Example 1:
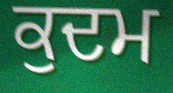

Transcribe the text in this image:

ਕੁਦਮ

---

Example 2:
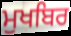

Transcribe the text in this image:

ਮੁਖਬਿਰ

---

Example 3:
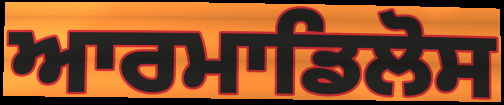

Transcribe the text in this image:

ਆਰਮਾਡਿਲੋਸ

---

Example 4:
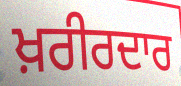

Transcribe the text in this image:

ਖ਼ਰੀਰਦਾਰ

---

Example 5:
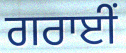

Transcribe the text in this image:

ਗਰਾਈਂ